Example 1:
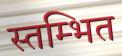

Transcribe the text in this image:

स्तम्भित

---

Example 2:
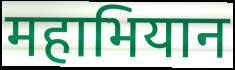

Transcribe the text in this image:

महाभियान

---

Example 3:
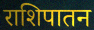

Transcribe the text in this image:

राशिपातन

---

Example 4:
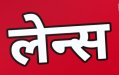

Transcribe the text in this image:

लेन्स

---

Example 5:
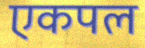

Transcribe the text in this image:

एकपल